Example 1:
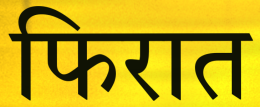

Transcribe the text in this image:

फिरात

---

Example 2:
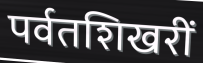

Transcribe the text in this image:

पर्वतशिखरीं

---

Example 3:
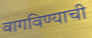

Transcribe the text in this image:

वागविण्याची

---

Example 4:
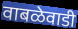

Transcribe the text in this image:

वाबळेवाडी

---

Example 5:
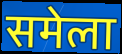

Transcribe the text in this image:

समेला